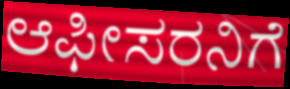
ಆಫೀಸರನಿಗೆ